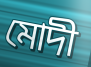
মোদী